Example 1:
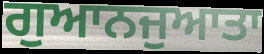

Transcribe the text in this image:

ਗੁਆਨਜੁਆਤਾ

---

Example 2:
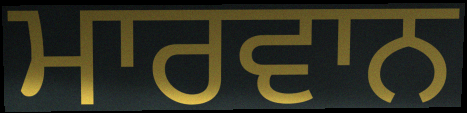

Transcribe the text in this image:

ਮਾਰਵਾਨ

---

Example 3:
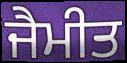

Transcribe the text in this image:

ਜੈਮੀਤ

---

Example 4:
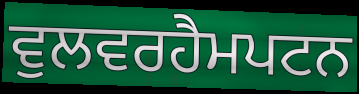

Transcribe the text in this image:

ਵੁਲਵਰਹੈਮਪਟਨ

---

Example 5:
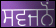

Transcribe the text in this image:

ਸਵਜਨੋਂ